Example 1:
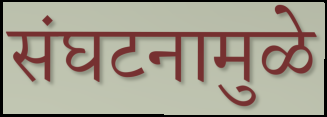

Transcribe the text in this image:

संघटनामुळे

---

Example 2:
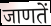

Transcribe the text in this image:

जाणतें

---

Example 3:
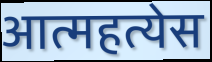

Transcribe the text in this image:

आत्महत्येस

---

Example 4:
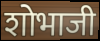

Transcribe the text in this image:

शोभाजी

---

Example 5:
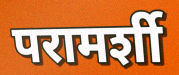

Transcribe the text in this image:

परामर्शी